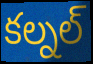
కల్నల్